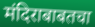
मंदिराबाबतचा